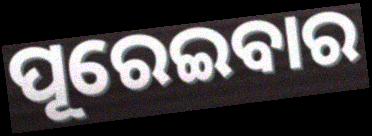
ପୂରେଇବାର